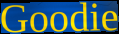
Goodie